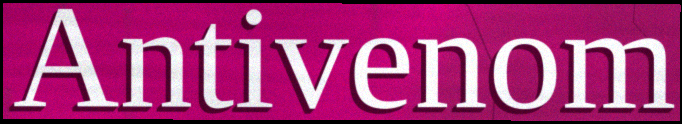
Antivenom